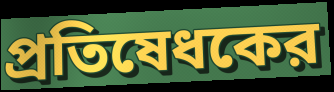
প্রতিষেধকের